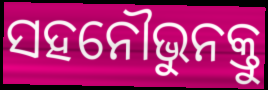
ସହନୌଭୁନକ୍ତୁ